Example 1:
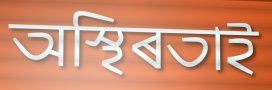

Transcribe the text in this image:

অস্থিৰতাই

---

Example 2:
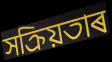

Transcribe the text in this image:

সক্ৰিয়তাৰ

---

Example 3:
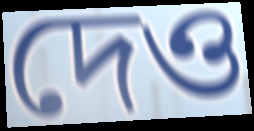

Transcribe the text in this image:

দেও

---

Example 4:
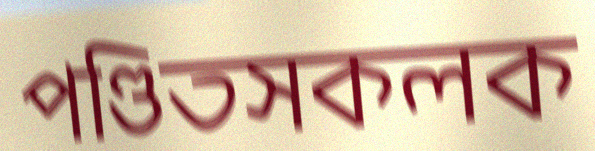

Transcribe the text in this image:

পণ্ডিতসকলক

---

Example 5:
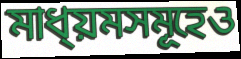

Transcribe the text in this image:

মাধ্য়মসমূহেও